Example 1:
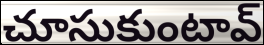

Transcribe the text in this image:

చూసుకుంటావ్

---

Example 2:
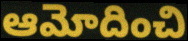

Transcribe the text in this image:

ఆమోదించి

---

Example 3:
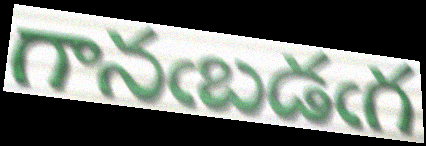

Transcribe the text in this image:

గానఁబడఁగ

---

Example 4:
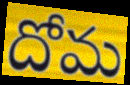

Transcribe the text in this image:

దోమ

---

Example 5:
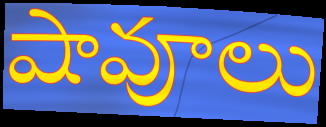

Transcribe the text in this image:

షావూలు